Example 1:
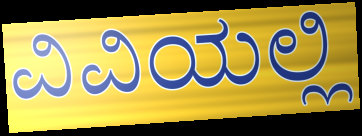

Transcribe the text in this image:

ವಿವಿಯಲ್ಲಿ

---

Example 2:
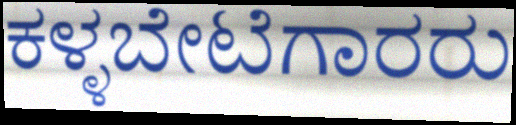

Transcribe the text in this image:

ಕಳ್ಳಬೇಟೆಗಾರರು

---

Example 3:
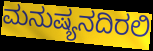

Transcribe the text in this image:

ಮನುಷ್ಯನದಿರಲಿ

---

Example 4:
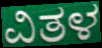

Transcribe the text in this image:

ವಿತಳ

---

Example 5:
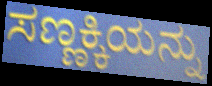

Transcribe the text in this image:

ಸಣ್ಣಕ್ಕಿಯನ್ನು